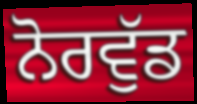
ਨੋਰਵੁੱਡ